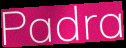
Padra